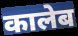
कालेब